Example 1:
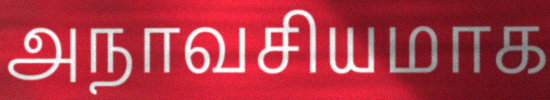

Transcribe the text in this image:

அநாவசியமாக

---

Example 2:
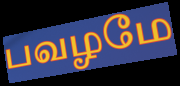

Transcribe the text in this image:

பவழமே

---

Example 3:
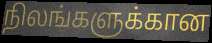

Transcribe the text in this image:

நிலங்களுக்கான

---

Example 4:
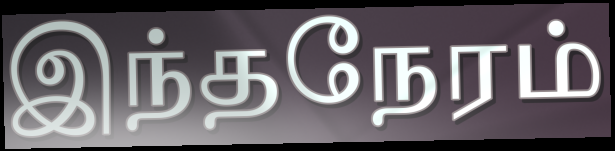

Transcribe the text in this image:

இந்தநேரம்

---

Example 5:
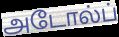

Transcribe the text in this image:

அடோல்ப்